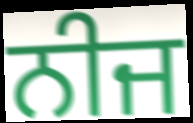
ਨੀਜ